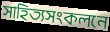
সাহিত্যসংকলনে